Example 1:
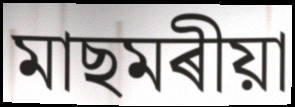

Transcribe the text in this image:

মাছমৰীয়া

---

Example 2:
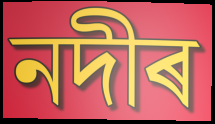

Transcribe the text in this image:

নদীৰ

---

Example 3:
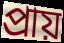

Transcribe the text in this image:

প্ৰায়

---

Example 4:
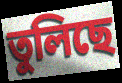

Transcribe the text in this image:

তুলিছে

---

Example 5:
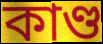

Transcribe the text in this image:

কাণ্ড